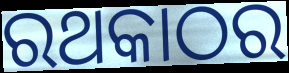
ରଥକାଠର